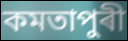
কমতাপুৰী